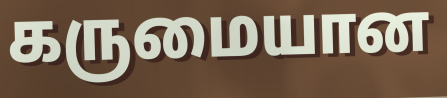
கருமையான